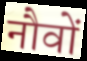
नौवों